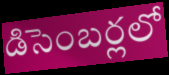
డిసెంబర్లలో